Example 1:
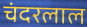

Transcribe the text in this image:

चंदरलाल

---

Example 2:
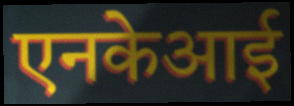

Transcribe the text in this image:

एनकेआई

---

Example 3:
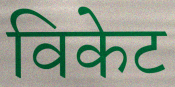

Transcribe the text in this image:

विकेट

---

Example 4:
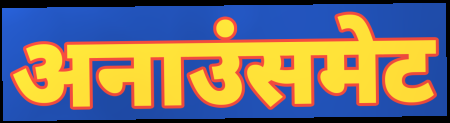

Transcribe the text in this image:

अनाउंसमेट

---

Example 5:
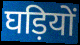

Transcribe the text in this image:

घड़ियों